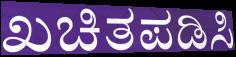
ಖಚಿತಪಡಿಸಿ